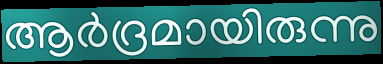
ആർദ്രമായിരുന്നു